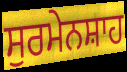
ਸੁਰਮੇਨਸ਼ਾਹ